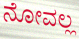
ನೋವಲ್ಲ